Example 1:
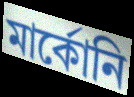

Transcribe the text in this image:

মার্কোনি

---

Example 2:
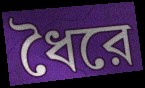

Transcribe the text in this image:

ধৈরে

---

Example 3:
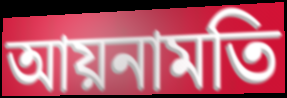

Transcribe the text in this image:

আয়নামতি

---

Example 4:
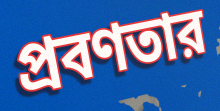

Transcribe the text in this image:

প্রবণতার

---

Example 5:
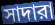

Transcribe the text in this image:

সাদারা